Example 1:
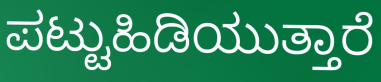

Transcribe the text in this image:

ಪಟ್ಟುಹಿಡಿಯುತ್ತಾರೆ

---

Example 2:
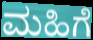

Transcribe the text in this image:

ಮಹಿಗೆ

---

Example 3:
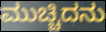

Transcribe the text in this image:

ಮುಚ್ಚಿದನು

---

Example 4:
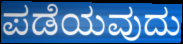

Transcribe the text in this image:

ಪಡೆಯವುದು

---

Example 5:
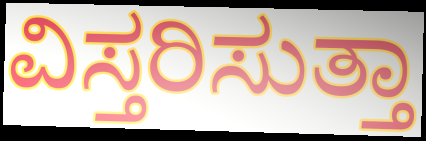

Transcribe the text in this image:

ವಿಸ್ತರಿಸುತ್ತಾ